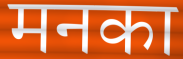
मनका